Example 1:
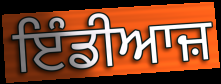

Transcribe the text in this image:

ਇੰਡੀਆਜ਼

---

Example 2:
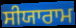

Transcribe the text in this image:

ਸੀਯਾਰਾਮ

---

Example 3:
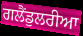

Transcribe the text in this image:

ਗਲੈਂਡੁਲਰੀਆ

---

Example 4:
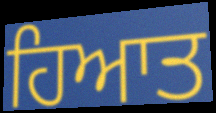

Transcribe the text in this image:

ਹਿਆਤ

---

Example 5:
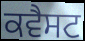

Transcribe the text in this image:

ਕਵੈਸਟ